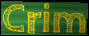
Crim